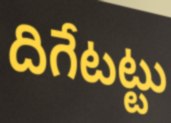
దిగేటట్టు